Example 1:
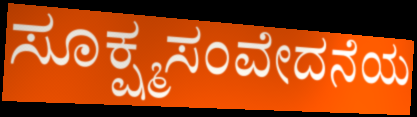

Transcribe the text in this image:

ಸೂಕ್ಷ್ಮಸಂವೇದನೆಯ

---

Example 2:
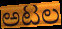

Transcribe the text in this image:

ಅಟಲ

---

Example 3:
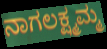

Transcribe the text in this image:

ನಾಗಲಕ್ಷ್ಮಮ್ಮ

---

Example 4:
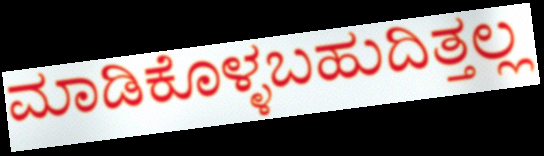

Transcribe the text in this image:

ಮಾಡಿಕೊಳ್ಳಬಹುದಿತ್ತಲ್ಲ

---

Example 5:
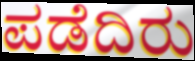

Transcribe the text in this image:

ಪಡೆದಿರು